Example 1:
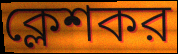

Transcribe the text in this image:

ক্লেশকর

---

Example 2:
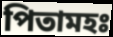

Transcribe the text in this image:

পিতামহঃ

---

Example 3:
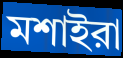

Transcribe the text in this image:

মশাইরা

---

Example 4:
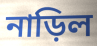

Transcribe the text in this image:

নাড়িল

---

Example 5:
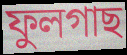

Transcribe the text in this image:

ফুলগাছ